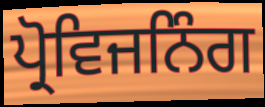
ਪ੍ਰੋਵਿਜਨਿੰਗ